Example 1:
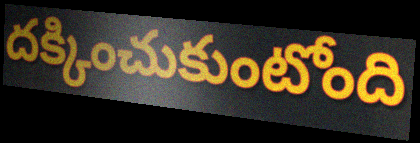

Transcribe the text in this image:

దక్కించుకుంటోంది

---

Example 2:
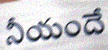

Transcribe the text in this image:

నీయందే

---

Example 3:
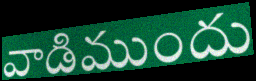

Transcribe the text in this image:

వాడిముందు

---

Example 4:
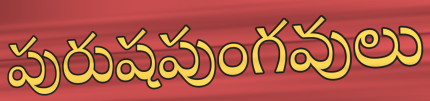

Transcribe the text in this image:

పురుషపుంగవులు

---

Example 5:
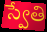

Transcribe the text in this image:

స్వేతి